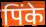
पिंके